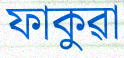
ফাকুৱা